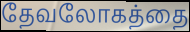
தேவலோகத்தை